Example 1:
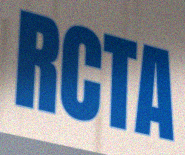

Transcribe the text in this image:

RCTA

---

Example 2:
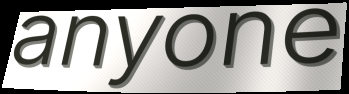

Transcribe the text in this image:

anyone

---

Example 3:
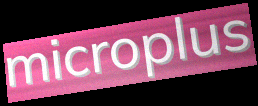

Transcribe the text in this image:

microplus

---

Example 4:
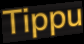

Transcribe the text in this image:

Tippu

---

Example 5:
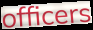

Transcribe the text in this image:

officers